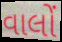
વાલોં